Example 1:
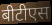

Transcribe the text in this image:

बीटीएस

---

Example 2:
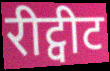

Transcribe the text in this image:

रीट्वीट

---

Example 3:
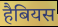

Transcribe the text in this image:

हैबियस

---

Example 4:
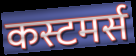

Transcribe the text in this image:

कस्टमर्स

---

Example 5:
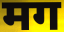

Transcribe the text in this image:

मग